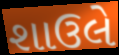
શાઉલે